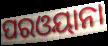
ପରଓୟାନା